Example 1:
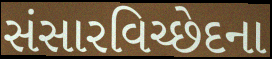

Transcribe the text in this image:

સંસારવિચ્છેદના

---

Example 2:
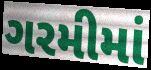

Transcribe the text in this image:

ગરમીમાં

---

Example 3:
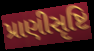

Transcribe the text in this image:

પ્રાણીસૃષ્ટિ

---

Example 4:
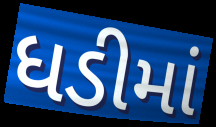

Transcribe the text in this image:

ધડીમાં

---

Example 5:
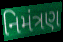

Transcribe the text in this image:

નિમંત્રણ